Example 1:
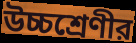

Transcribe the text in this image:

উচ্চশ্রেণীর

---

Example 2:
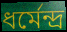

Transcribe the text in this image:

ধর্মেন্দ্র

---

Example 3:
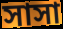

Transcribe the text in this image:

সাসা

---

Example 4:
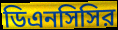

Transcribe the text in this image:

ডিএনসিসির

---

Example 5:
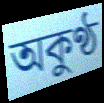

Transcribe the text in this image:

অকুণ্ঠ